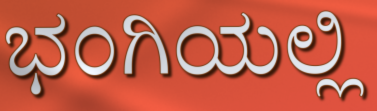
ಭಂಗಿಯಲ್ಲಿ